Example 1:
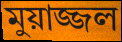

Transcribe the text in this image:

মুয়াজ্জল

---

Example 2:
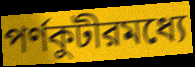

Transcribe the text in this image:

পর্ণকুটীরমধ্যে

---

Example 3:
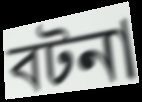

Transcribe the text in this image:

বটনা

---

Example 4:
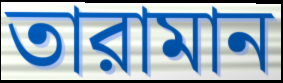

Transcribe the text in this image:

তারামান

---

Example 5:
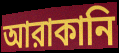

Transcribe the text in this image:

আরাকানি